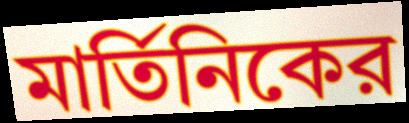
মার্তিনিকের